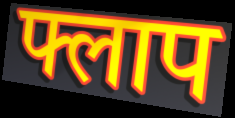
फ्लाप